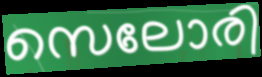
സെലോരി